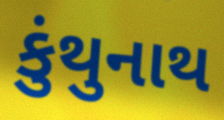
કુંથુનાથ